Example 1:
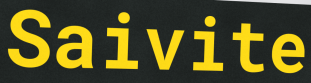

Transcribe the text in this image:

Saivite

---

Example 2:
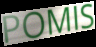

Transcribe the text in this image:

POMIS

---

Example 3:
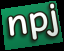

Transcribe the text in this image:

npj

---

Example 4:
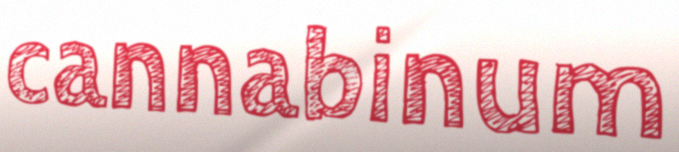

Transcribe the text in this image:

cannabinum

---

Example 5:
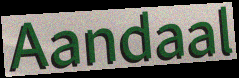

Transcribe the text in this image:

Aandaal